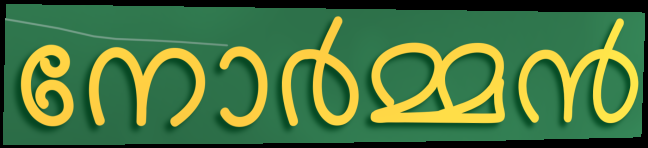
നോർമ്മൻ